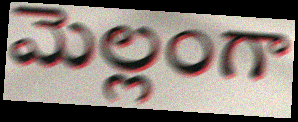
మెల్లంగా